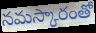
నమస్కారంతో